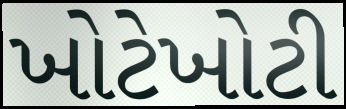
ખોટેખોટી